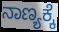
ನಾಣ್ಯಕ್ಕೆ